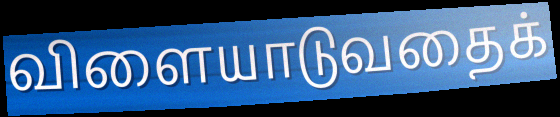
விளையாடுவதைக்